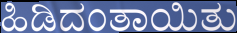
ಹಿಡಿದಂತಾಯಿತು